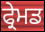
ਫ੍ਰੇਮਡ